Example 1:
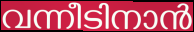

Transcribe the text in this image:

വന്നീടിനാൻ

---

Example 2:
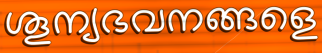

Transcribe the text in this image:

ശൂന്യഭവനങ്ങളെ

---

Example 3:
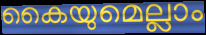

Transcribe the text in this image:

കൈയുമെല്ലാം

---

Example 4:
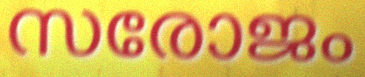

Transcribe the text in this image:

സരോജം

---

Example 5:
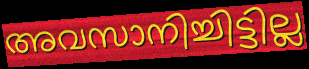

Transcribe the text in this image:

അവസാനിച്ചിട്ടില്ല